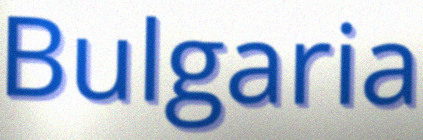
Bulgaria